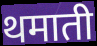
थमाती